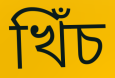
খিঁচ